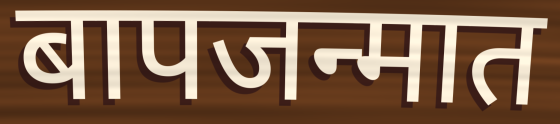
बापजन्मात